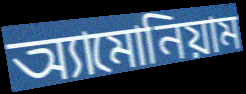
অ্যামোনিয়াম